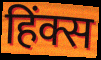
हिंक्स